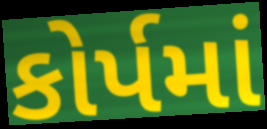
કોર્પમાં